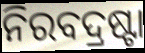
ନିରବଦ୍ରଷ୍ଟା